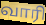
வாரி